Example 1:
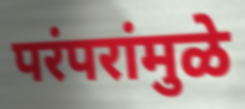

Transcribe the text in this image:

परंपरांमुळे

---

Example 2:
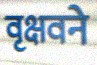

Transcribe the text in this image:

वृक्षवने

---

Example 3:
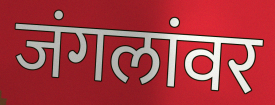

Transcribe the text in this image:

जंगलांवर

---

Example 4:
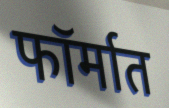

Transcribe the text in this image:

फॉर्मात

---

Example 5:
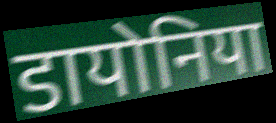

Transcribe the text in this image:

डायोनिया